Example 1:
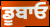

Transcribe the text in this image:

ਡੂਬਾਓ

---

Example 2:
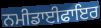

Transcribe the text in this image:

ਨਮੀਡਾਈਫਾਇਰ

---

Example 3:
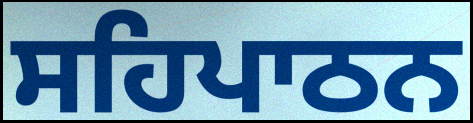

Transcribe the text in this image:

ਸਹਿਪਾਠਨ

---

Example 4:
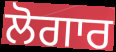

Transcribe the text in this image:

ਲੋਗਾਰ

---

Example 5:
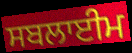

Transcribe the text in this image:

ਸਬਲਾਈਮ